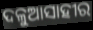
ଦଳୁଆସାହୀର